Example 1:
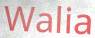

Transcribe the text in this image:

Walia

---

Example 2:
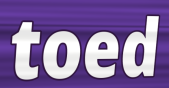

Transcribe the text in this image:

toed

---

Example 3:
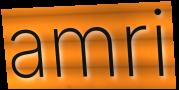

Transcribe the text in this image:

amri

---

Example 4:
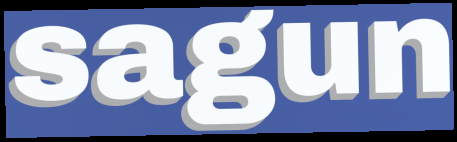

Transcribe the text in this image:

sagun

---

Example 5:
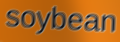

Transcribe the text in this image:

soybean